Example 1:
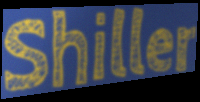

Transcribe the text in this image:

Shiller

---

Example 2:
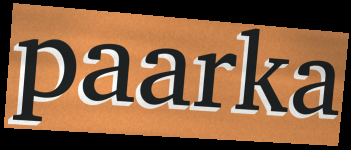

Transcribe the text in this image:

paarka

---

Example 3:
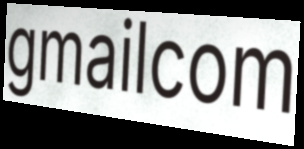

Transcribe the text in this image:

gmailcom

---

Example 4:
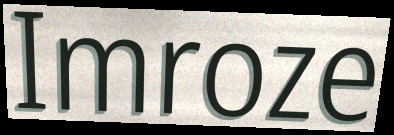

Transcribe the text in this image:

Imroze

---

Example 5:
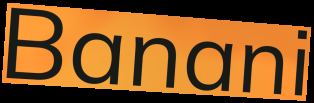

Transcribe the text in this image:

Banani